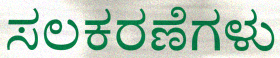
ಸಲಕರಣೆಗಳು